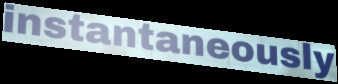
instantaneously